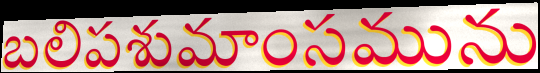
బలిపశుమాంసమును